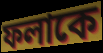
ফলাকে